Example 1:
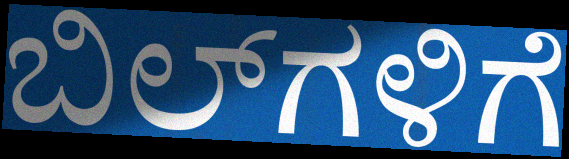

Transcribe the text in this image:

ಬಿಲ್‌ಗಳಿಗೆ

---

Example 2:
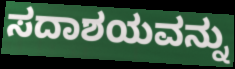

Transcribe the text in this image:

ಸದಾಶಯವನ್ನು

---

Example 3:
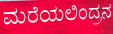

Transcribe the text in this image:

ಮರೆಯಲಿಂದ್ರನ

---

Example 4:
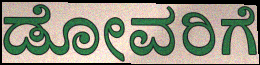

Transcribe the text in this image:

ಡೋವರಿಗೆ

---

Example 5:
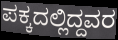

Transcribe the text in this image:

ಪಕ್ಕದಲ್ಲಿದ್ದವರ